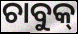
ଚାବୁକ୍